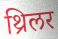
थ्रिलर